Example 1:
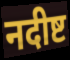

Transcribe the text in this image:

नदीष्ट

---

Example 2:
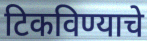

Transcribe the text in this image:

टिकविण्याचे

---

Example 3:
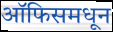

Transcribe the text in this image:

ऑफिसमधून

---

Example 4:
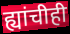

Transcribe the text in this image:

ह्यांचीही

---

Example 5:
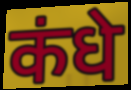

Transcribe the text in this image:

कंधे